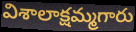
విశాలాక్షమ్మగారు